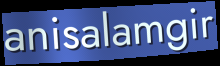
anisalamgir